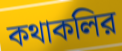
কথাকলির